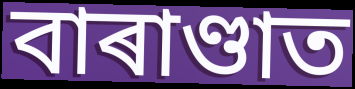
বাৰাণ্ডাত